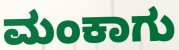
ಮಂಕಾಗು